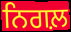
ਨਿਗਲ਼